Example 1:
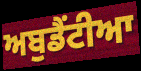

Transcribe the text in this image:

ਅਬੁਡੈਂਟੀਆ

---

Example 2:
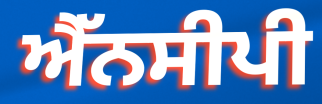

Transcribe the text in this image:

ਐੱਨਸੀਪੀ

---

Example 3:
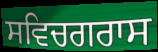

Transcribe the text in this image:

ਸਵਿਚਗਰਾਸ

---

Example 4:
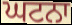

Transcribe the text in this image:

ਘਟਨਾ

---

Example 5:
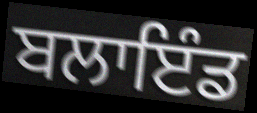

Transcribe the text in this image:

ਬਲਾਇੰਡ